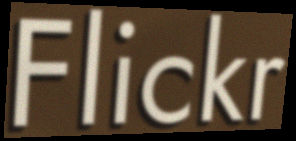
Flickr